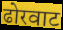
ढोरवाट